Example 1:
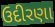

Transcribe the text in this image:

ઉદીરણા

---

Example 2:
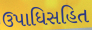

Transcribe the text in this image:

ઉપાધિસહિત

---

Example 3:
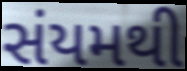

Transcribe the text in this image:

સંયમથી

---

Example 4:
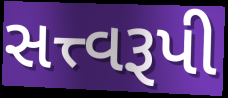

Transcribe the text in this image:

સત્ત્વરૂપી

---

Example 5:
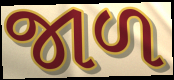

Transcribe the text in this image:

જાળ